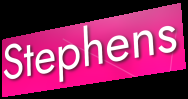
Stephens